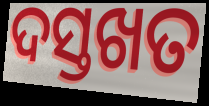
ଦସ୍ତଖତ